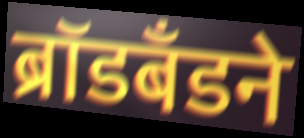
ब्रॉडबँडने